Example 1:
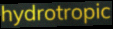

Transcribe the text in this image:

hydrotropic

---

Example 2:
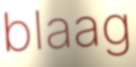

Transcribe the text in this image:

blaag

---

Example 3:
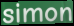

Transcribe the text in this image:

simon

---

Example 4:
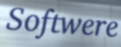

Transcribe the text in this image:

Softwere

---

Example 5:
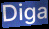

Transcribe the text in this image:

Diga